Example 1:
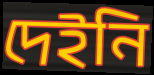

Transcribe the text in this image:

দেইনি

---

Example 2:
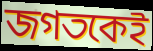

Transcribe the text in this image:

জগতকেই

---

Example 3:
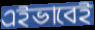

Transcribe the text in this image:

এইভাবেই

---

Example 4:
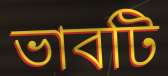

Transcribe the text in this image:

ভাবটি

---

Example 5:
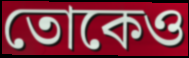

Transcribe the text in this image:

তোকেও